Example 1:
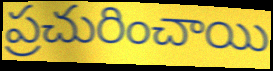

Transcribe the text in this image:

ప్రచురించాయి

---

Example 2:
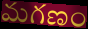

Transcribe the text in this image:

మగణం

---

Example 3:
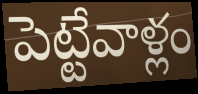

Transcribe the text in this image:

పెట్టేవాళ్లం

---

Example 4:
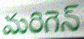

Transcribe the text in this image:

మరిగెన్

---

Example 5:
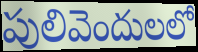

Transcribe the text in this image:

పులివెందులలో